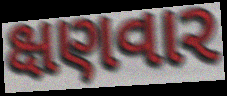
ક્ષણવાર